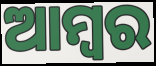
ଆମ୍ବର